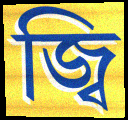
জ্বি